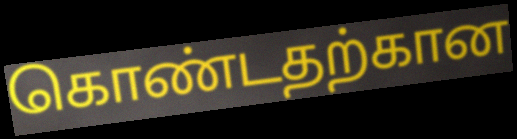
கொண்டதற்கான